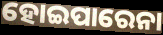
ହୋଇପାରେନା